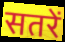
सतरें